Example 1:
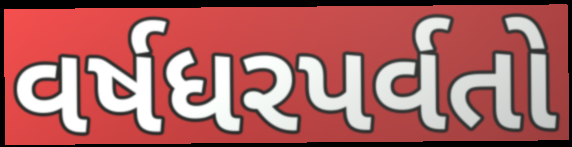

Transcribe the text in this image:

વર્ષધરપર્વતો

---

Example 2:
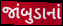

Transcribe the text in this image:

જાંબુડાનાં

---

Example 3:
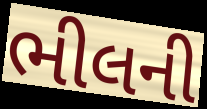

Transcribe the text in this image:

ભીલની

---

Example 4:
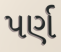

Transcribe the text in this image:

પર્ણ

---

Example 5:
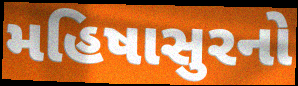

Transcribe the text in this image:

મહિષાસુરનો